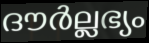
ദൗർല്ലഭ്യം